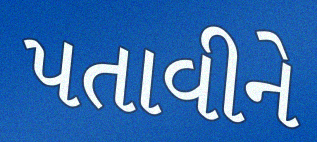
પતાવીને